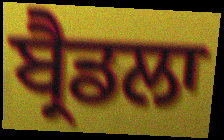
ਬ੍ਰੈਡਲਾ